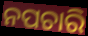
ନପଚାରି